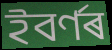
ইবৰ্ণৰ